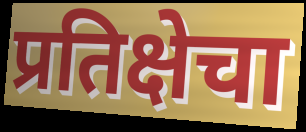
प्रतिक्षेचा